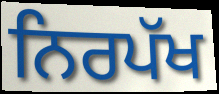
ਨਿਰਪੱਖ